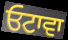
ਓਟਾਵਾ